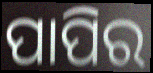
ପାପିର